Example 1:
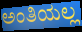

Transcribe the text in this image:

ಅಂತಿಯಲ್ಲ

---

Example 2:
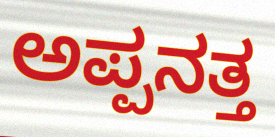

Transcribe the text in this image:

ಅಪ್ಪನತ್ತ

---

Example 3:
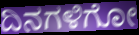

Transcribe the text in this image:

ದಿನಗಳಿಗೋ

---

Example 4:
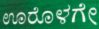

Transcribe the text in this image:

ಊರೊಳಗೇ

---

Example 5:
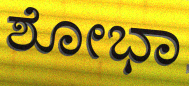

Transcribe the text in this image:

ಶೋಭಾ